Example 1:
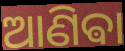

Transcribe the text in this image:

ଆଣିଵା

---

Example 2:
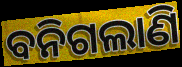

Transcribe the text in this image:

ବନିଗଲାଣି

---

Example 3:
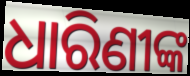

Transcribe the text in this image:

ଧାରିଣୀଙ୍କ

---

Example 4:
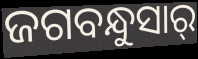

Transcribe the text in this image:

ଜଗବନ୍ଧୁସାର୍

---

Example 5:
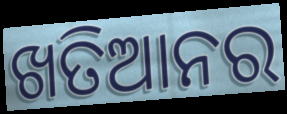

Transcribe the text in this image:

ଖତିଆନର